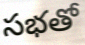
సభతో